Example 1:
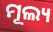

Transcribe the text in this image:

ମୂଲ୍ୟ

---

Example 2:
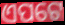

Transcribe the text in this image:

ଏପଟେ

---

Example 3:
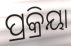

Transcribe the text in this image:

ପ୍ରକ୍ରିୟା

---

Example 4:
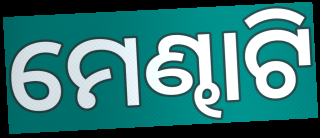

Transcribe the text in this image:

ମେଣ୍ଢାଟି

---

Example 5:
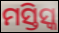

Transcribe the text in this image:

ମସ୍ତିସ୍କ